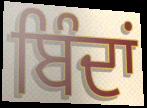
ਬਿੰਦਾਂ